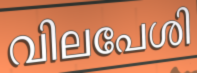
വിലപേശി